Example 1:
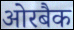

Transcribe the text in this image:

ओरबैक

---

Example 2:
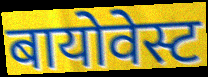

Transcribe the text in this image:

बायोवेस्ट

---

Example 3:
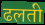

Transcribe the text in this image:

ढलती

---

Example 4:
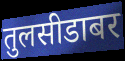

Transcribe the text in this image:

तुलसीडाबर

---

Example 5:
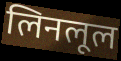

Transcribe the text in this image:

लिनलूल